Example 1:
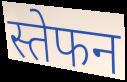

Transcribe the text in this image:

स्तेफन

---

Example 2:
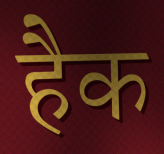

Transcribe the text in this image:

हैक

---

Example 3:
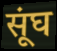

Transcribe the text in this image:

सूंघ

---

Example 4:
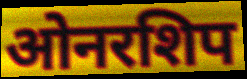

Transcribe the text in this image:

ओनरशिप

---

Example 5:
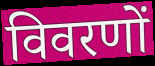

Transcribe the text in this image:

विवरणों